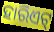
ହାରିଏଟ୍